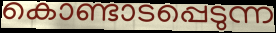
കൊണ്ടാടപ്പെടുന്ന